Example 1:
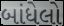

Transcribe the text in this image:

બાંધેલો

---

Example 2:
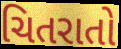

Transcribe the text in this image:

ચિતરાતો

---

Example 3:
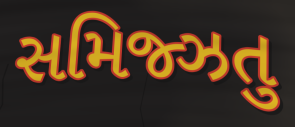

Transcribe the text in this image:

સમિજ્ઝતુ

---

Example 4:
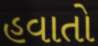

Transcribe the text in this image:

હવાતો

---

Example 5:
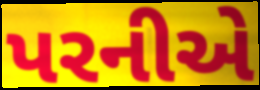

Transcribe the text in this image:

પરનીએ